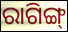
ରାଗିଙ୍ଗ୍